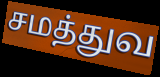
சமத்துவ